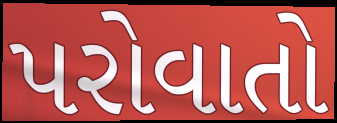
પરોવાતો